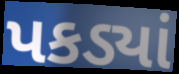
પકડ્યાં